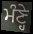
ਮੰਣ੍ਹੇ